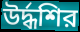
উর্দ্ধশির